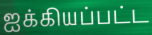
ஐக்கியப்பட்ட